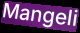
Mangeli